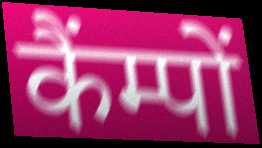
कैंम्पों